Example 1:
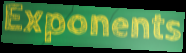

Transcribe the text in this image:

Exponents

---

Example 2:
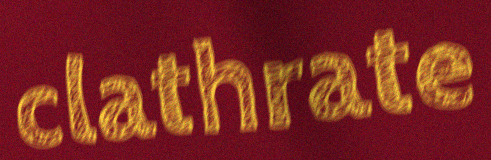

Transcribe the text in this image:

clathrate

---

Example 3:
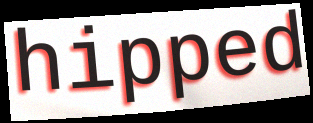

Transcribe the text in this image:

hipped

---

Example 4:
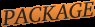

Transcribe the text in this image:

PACKAGE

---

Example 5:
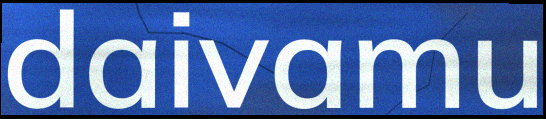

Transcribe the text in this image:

daivamu